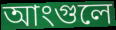
আংগুলে